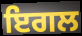
ਇਗਲ